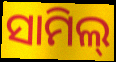
ସାମିଲ୍